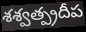
శశ్వత్ప్రదీప